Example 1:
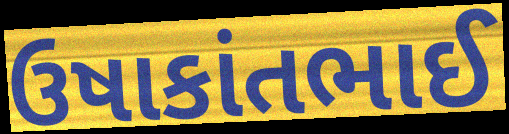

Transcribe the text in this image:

ઉષાકાંતભાઈ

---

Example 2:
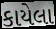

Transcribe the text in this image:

કાયેલા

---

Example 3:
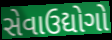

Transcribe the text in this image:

સેવાઉદ્યોગો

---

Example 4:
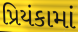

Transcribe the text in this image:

પ્રિયંકામાં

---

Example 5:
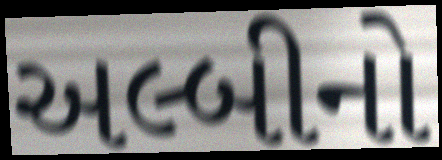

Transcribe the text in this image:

અલ્બીનો